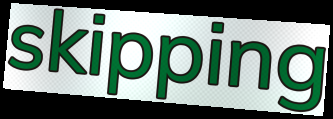
skipping